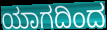
ಯಾಗದಿಂದ